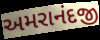
અમરાનંદજી